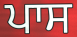
ਪਾਸ